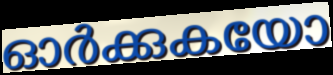
ഓർക്കുകയോ